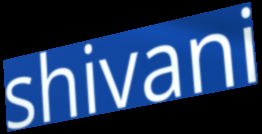
shivani